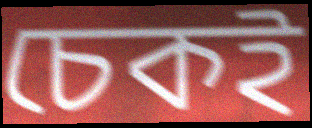
চেকই